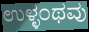
ಉಳ್ಳಂಥವು